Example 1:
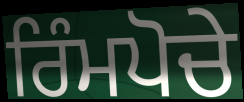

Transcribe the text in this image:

ਰਿੰਮਪੋਚੇ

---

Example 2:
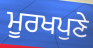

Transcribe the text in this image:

ਮੂਰਖਪੁਣੇ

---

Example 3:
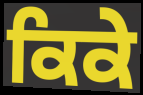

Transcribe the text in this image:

ਕਿਕੇ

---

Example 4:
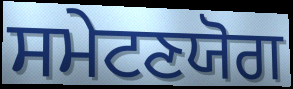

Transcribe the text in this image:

ਸਮੇਟਣਯੋਗ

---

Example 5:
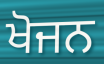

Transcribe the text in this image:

ਖੋਜਨ